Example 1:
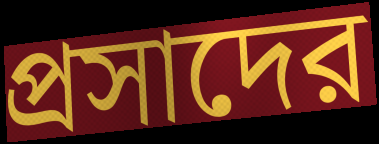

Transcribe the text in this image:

প্রসাদের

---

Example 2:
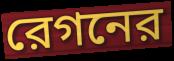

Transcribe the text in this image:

রেগনের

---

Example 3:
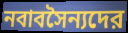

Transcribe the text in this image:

নবাবসৈন্যদের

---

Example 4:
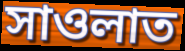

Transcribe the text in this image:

সাওলাত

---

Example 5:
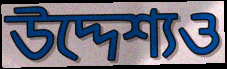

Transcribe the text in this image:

উদ্দেশ্যও